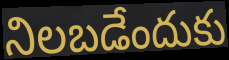
నిలబడేందుకు